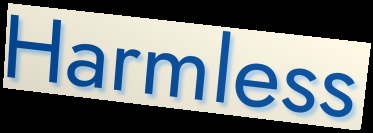
Harmless